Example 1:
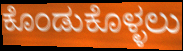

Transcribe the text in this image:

ಕೊಂಡುಕೊಳ್ಳಲು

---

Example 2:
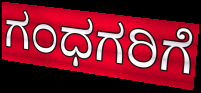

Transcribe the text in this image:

ಗಂಧಗರಿಗೆ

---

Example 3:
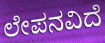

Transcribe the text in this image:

ಲೇಪನವಿದೆ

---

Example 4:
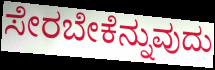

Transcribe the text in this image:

ಸೇರಬೇಕೆನ್ನುವುದು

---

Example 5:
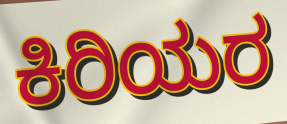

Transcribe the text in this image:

ಕಿರಿಯರ